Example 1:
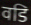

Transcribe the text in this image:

वडि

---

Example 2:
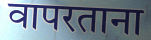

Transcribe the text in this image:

वापरताना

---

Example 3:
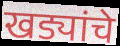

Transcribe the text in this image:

खड्यांचे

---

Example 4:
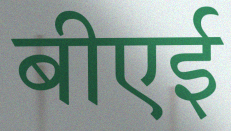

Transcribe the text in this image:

बीएई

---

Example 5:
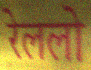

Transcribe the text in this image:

रेललो